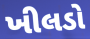
ખીલડો